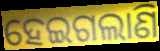
ହେଇଗଲାଣି